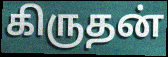
கிருதன்